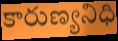
కారుణ్యనిధి